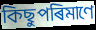
কিছুপৰিমাণে